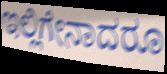
ಇಲ್ಲಿಗೇನಾದರೂ